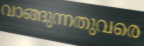
വാങ്ങുന്നതുവരെ